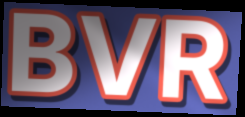
BVR